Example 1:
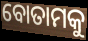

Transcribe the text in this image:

ବୋତାମକୁ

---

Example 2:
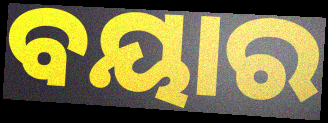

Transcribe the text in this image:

ବୟାର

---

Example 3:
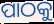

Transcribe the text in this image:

ପାଠକୁ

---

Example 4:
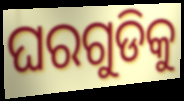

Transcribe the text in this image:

ଘରଗୁଡିକୁ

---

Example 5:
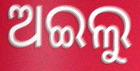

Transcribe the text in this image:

ଅଇଲୁ